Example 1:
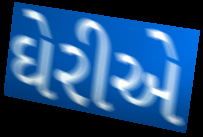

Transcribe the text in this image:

ઘેરીએ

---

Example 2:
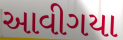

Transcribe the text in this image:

આવીગયા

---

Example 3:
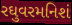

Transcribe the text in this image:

રઘુવરમનિશં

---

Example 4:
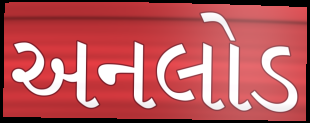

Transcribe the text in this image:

અનલોડ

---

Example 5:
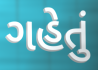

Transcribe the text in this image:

ગહેતું